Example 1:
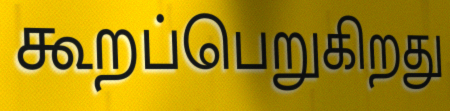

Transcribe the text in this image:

கூறப்பெறுகிறது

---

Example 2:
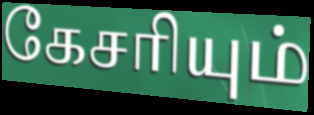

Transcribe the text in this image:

கேசரியும்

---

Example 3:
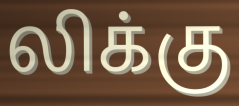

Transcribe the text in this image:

லிக்கு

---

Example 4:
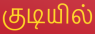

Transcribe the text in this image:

குடியில்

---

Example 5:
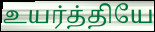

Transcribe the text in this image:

உயர்த்தியே